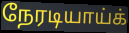
நேரடியாய்க்